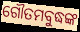
ଗୌତମବୁଦ୍ଧଙ୍କ